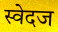
स्वेदज